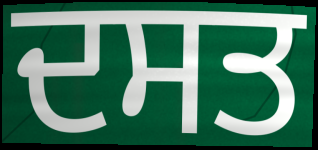
ਦਸਤ